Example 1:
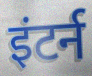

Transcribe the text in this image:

इंटर्न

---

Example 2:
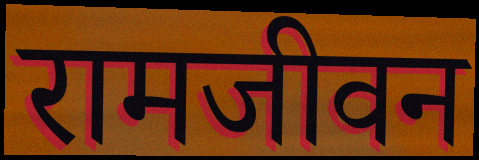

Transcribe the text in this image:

रामजीवन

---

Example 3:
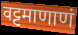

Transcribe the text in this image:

वट्टमाणाणं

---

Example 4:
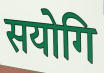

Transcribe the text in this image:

सयोगि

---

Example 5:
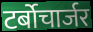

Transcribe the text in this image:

टर्बोचार्जर